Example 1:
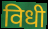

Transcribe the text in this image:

विधी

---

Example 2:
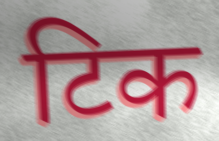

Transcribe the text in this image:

टिक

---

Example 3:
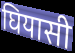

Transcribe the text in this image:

घियासी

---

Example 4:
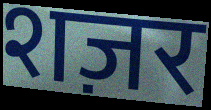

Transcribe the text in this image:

शज़र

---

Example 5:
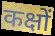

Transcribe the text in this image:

कक्षों